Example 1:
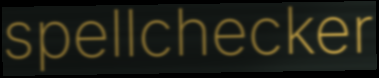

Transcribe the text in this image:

spellchecker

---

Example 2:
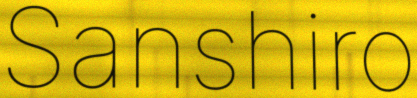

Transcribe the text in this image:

Sanshiro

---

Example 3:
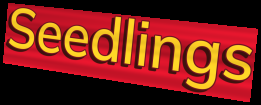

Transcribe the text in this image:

Seedlings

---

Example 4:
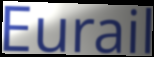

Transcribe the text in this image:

Eurail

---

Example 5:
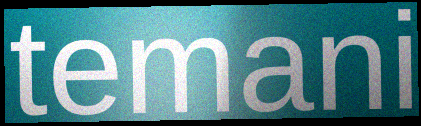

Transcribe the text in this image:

temani